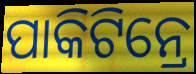
ପାକିଟିନ୍ରେ